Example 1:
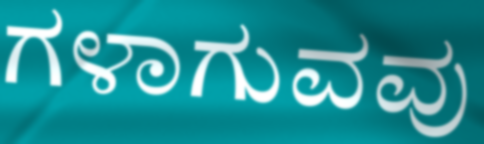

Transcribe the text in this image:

ಗಳಾಗುವವು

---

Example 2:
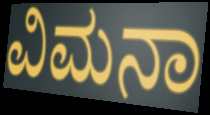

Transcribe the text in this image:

ವಿಮನಾ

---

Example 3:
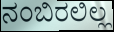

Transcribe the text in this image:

ನಂಬಿರಲಿಲ್ಲ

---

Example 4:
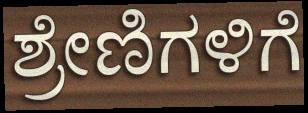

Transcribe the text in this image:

ಶ್ರೇಣಿಗಳಿಗೆ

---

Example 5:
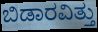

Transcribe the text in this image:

ಬಿಡಾರವಿತ್ತು